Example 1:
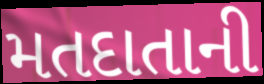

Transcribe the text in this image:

મતદાતાની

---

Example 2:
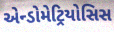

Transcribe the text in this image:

એન્ડોમેટ્રિયોસિસ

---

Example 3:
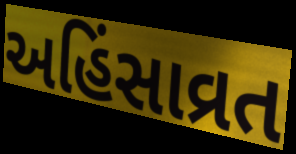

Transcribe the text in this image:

અહિંસાવ્રત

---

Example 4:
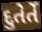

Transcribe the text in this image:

દુતેર્તે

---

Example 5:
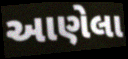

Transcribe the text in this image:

આણેલા